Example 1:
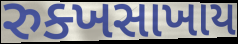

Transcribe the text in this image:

રુક્ખસાખાય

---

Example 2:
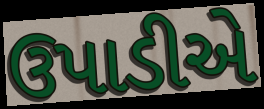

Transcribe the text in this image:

ઉપાડીએ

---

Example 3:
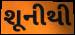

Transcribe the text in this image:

શૂનીથી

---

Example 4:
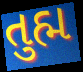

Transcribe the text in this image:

તુહ્મ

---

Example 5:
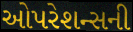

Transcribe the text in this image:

ઓપરેશન્સની